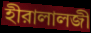
হীরালালজী